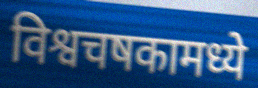
विश्वचषकामध्ये